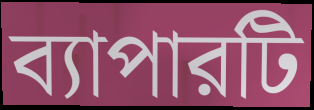
ব্যাপারটি